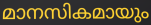
മാനസികമായും